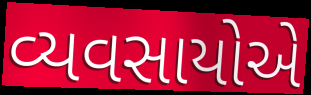
વ્યવસાયોએ